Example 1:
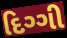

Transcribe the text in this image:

દિગ્ગી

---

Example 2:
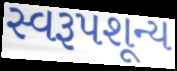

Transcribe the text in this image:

સ્વરૂપશૂન્ય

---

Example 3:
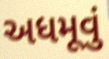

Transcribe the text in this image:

અધમૂવું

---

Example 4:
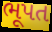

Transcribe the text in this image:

ભૂપત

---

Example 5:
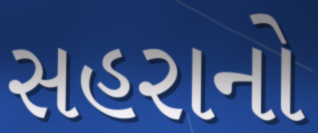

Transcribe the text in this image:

સહરાનો